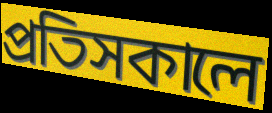
প্রতিসকালে